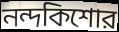
নন্দকিশোর